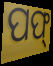
ପଫ୍